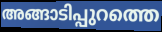
അങ്ങാടിപ്പുറത്തെ